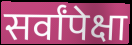
सर्वांपेक्षा